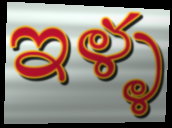
ఇళ్ళ